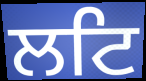
ਲਟਿ